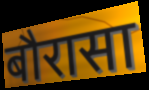
बौरासा